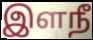
இளநீ